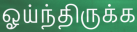
ஓய்ந்திருக்க